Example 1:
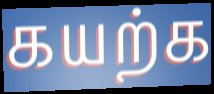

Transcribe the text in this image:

கயற்க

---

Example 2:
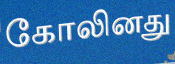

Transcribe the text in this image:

கோலினது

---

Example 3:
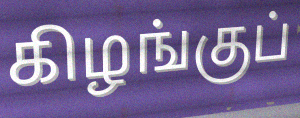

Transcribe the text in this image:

கிழங்குப்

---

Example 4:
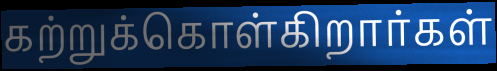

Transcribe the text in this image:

கற்றுக்கொள்கிறார்கள்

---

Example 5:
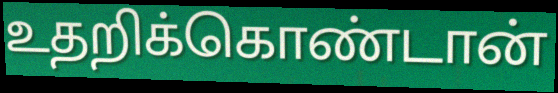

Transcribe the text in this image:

உதறிக்கொண்டான்